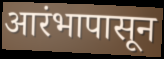
आरंभापासून